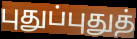
புதுப்புதுத்